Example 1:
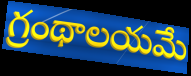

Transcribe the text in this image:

గ్రంథాలయమే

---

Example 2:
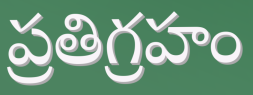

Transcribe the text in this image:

ప్రతిగ్రహం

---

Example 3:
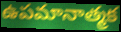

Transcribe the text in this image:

ఉపమానాత్మక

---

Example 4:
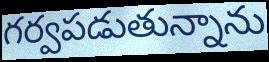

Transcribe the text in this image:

గర్వపడుతున్నాను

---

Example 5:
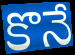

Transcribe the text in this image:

కొనే